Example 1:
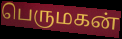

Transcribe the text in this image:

பெருமகன்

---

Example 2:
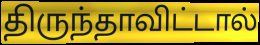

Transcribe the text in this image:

திருந்தாவிட்டால்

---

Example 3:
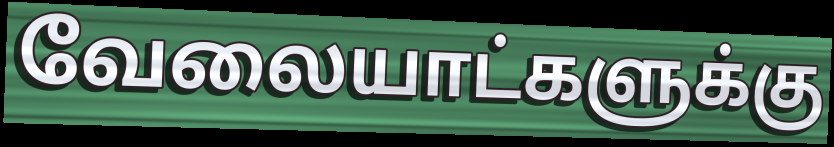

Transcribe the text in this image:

வேலையாட்களுக்கு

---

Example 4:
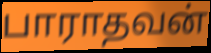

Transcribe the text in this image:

பாராதவன்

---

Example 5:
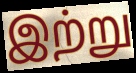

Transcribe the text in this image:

இற்று